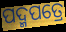
ପଦ୍ମପତ୍ରେ